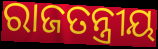
ରାଜତନ୍ତ୍ରୀୟ